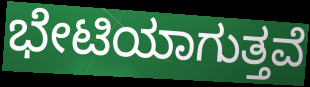
ಭೇಟಿಯಾಗುತ್ತವೆ